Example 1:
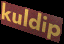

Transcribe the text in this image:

kuldip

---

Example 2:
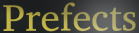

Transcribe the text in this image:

Prefects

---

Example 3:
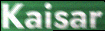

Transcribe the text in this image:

Kaisar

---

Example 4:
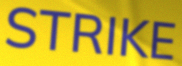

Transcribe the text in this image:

STRIKE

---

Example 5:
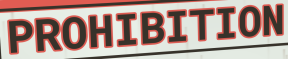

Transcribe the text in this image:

PROHIBITION